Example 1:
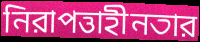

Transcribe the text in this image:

নিরাপত্তাহীনতার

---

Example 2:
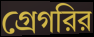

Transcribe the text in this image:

গ্রেগরির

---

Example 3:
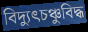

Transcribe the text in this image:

বিদ্যুৎচঞ্চুবিদ্ধ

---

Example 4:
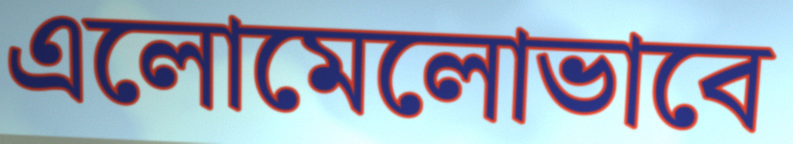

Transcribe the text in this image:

এলোমেলোভাবে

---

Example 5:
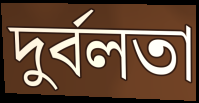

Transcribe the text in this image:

দুর্বলতা